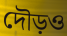
দৌড়ও